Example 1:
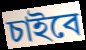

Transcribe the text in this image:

চাইবে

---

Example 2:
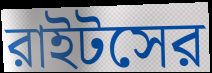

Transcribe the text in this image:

রাইটসের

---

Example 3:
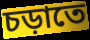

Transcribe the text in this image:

চড়াতে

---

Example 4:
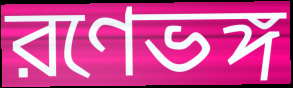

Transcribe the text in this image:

রণেভঙ্গ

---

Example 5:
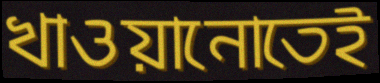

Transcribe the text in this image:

খাওয়ানোতেই